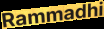
Rammadhi